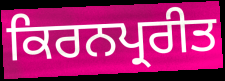
ਕਿਰਨਪ੍ਰਰੀਤ